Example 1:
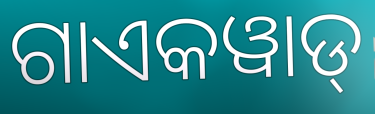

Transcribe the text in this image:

ଗାଏକୱାଡ୍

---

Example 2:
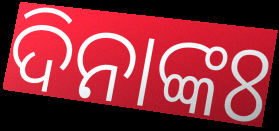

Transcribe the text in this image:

ଦିନାଙ୍କଃ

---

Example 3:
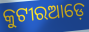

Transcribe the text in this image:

କୁଟୀରଆଡ଼େ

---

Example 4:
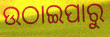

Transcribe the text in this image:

ଉଠାଇପାରୁ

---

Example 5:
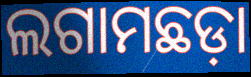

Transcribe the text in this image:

ଲଗାମଛଡ଼ା